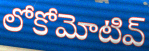
లోకోమోటివ్